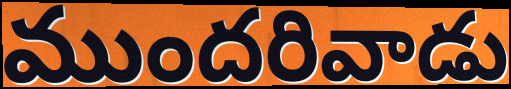
ముందరివాడు